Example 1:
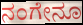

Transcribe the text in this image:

ನಂಗೇನೂ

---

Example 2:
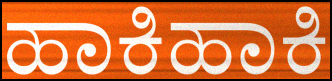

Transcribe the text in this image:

ಹಾಕಿಹಾಕಿ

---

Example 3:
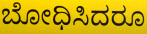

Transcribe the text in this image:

ಬೋಧಿಸಿದರೂ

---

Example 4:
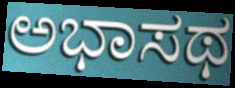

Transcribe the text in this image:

ಅಭಾಸಥ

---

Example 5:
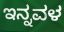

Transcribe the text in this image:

ಇನ್ನವಳ